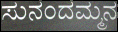
ಸುನಂದಮ್ಮನ